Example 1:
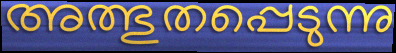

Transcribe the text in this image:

അത്ഭുതപ്പെടുന്നു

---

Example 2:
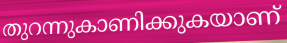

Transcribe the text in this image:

തുറന്നുകാണിക്കുകയാണ്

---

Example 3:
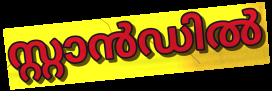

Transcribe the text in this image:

സ്റ്റാൻഡിൽ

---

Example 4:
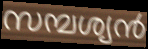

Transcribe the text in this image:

സമ്പശ്യൻ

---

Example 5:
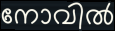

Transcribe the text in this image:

നോവിൽ